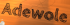
Adewole